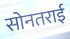
सोनतराई